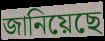
জানিয়েছে